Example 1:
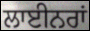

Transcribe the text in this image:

ਲਾਈਨਰਾਂ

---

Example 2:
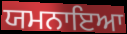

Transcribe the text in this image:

ਯਮਨਾਇਆ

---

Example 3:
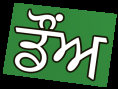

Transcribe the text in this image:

ਡੌਂਅ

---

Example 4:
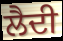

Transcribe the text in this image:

ਲੈਦੀ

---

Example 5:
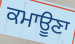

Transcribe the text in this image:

ਕਮਾਊਣਾ